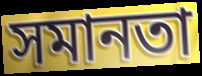
সমানতা